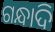
ଗନ୍ଧାଦି